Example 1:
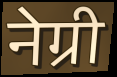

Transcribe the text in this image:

नेग्री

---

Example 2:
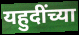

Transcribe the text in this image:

यहुदींच्या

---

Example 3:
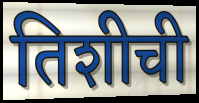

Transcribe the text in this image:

तिशीची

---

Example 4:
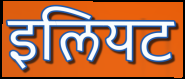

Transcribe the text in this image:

इलियट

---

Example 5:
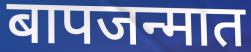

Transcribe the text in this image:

बापजन्मात